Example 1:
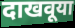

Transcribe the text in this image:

दाखवूया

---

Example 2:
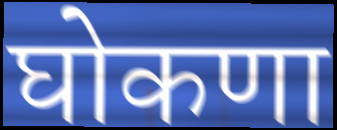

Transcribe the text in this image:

घोकणा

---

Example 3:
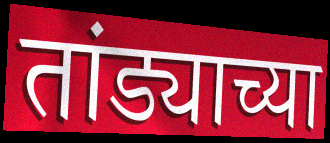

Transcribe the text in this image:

तांड्याच्या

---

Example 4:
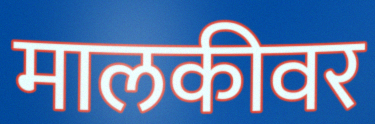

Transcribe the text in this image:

मालकीवर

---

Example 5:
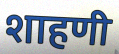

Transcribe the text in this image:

शाहणी